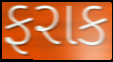
ફરાક